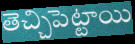
తెచ్చిపెట్టాయి